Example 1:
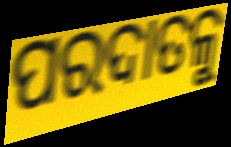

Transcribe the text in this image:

ପରଦାତଳୁ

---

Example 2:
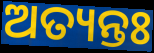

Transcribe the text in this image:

ଅତ୍ୟନ୍ତଃ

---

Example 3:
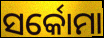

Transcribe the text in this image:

ସର୍କୋମା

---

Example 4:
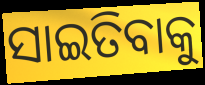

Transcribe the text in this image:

ସାଇତିବାକୁ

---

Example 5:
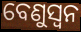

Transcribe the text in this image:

ବେଣୁସ୍ଵନ